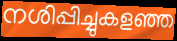
നശിപ്പിച്ചുകളഞ്ഞ